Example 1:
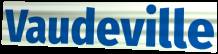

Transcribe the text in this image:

Vaudeville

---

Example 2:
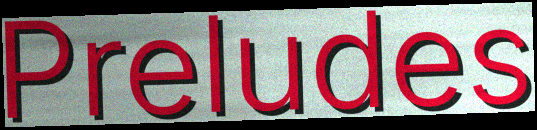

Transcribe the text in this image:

Preludes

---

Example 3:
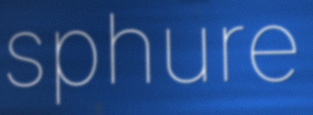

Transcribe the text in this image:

sphure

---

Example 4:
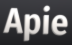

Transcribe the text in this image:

Apie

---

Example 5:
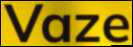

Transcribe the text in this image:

Vaze